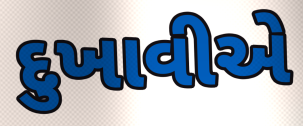
દુખાવીએ